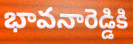
భావనారెడ్డికి